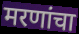
मरणांचा